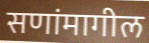
सणांमागील